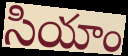
సియాం